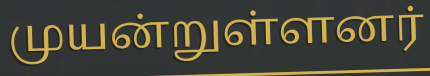
முயன்றுள்ளனர்